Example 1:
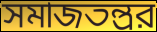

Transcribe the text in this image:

সমাজতন্ত্রর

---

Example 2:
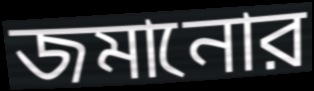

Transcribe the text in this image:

জমানোর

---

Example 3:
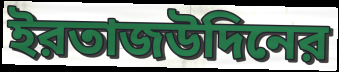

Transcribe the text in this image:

ইরতাজউদিনের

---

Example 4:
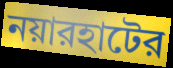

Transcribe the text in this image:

নয়ারহাটের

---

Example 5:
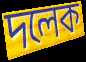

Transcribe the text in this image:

দলেক